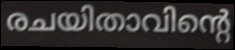
രചയിതാവിന്റെ